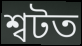
শ্বটত